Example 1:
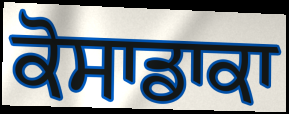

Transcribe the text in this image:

ਕੋਸਾਡਾਕਾ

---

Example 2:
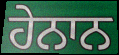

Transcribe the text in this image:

ਹੇਨਾਨ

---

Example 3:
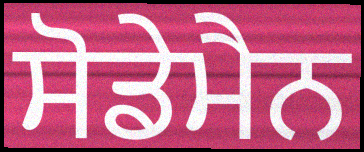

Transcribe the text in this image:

ਸੋਡੇਮੈਨ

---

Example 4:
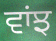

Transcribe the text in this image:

ਵਾਂਝ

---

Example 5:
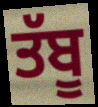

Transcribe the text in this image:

ਤੱਬੂ